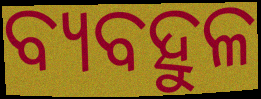
ବ୍ୟବହୁଳ